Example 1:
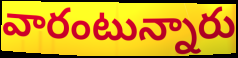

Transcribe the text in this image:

వారంటున్నారు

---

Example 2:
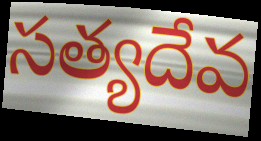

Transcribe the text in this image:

సత్యదేవ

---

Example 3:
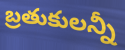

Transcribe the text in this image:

బ్రతుకులన్నీ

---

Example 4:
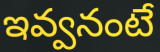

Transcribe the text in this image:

ఇవ్వనంటే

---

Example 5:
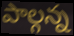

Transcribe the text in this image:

పాల్గన్న